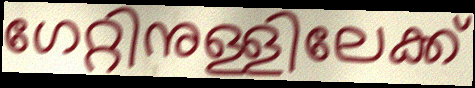
ഗേറ്റിനുള്ളിലേക്ക്